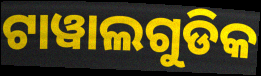
ଟାୱାଲଗୁଡିକ